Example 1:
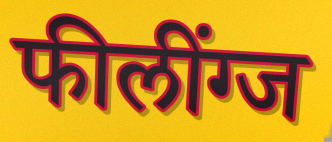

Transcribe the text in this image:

फीलींग्ज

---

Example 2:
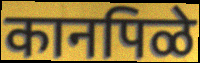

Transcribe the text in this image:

कानपिळे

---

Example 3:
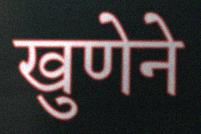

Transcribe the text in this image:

खुणेने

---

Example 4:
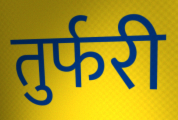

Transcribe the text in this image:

तुर्फरी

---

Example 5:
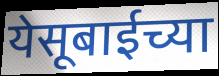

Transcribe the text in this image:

येसूबाईच्या